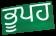
ਭੂਪਹ